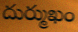
దుర్ముఖం